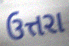
ઉત્તરા